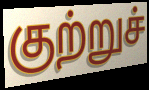
குற்றுச்